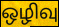
ஒழிவு